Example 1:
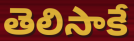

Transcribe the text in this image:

తెలిసాకే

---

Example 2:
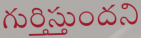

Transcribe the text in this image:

గుర్తిస్తుందని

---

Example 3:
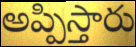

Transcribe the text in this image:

అప్పిస్తారు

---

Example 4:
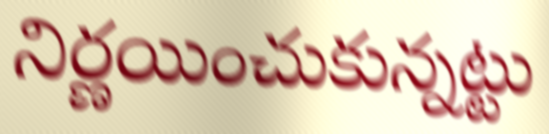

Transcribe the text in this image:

నిర్ణయించుకున్నట్టు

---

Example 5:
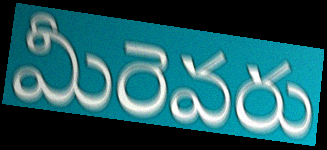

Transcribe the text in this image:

మీరెవరు